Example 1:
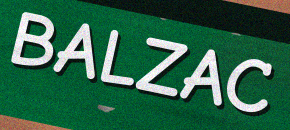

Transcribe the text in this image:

BALZAC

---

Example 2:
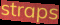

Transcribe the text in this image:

straps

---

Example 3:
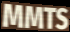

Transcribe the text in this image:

MMTS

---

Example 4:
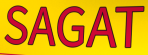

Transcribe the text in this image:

SAGAT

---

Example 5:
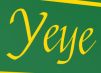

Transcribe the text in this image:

Yeye